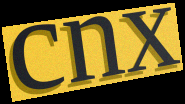
cnx